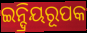
ଇନ୍ଦ୍ରିୟରୂପକ